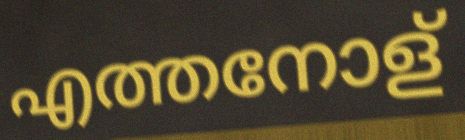
എത്തനോള്